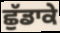
ਛੁੱਡਾਕੇ